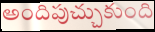
అందిపుచ్చుకుంది